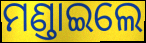
ମଣ୍ଡାଇଲେ